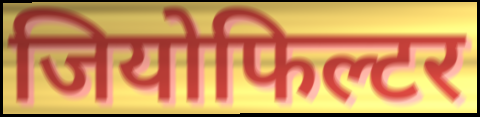
जियोफिल्टर